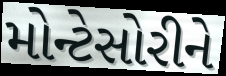
મોન્ટેસોરીને